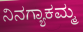
ನಿನಗ್ಯಾಕಮ್ಮ